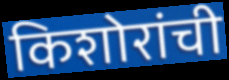
किशोरांची